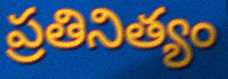
ప్రతినిత్యం